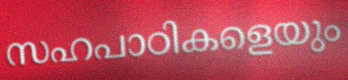
സഹപാഠികളെയും